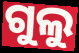
ଗୁଲୁ